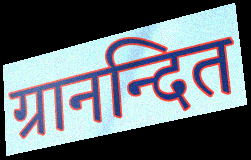
ग्रानन्दित